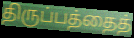
திருப்பத்தைத்